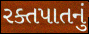
રક્તપાતનું